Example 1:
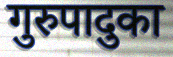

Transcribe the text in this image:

गुरुपादुका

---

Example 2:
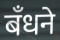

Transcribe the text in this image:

बँधने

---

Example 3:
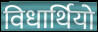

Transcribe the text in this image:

विधार्थियो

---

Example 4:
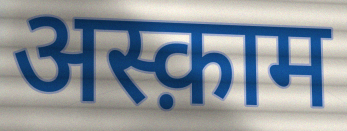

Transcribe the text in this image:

अस्क़ाम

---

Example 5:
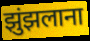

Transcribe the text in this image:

झुंझलाना